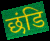
छंडि